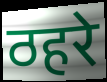
ठहरे